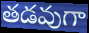
తడవుగా